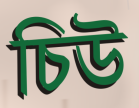
চিউ